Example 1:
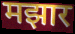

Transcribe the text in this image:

मझार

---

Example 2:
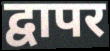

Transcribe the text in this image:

द्वापर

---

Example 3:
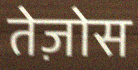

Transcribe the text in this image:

तेज़ोस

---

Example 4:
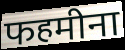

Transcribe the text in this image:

फहमीना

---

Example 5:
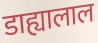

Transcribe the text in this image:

डाह्यालाल